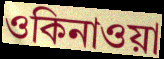
ওকিনাওয়া